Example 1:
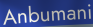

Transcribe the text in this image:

Anbumani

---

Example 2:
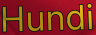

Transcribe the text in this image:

Hundi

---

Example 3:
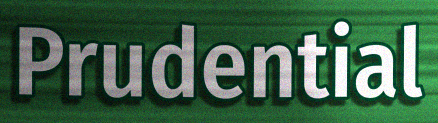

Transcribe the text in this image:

Prudential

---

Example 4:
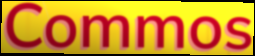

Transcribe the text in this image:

Commos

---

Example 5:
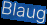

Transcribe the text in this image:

Blaug